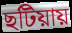
ছটিয়ায়